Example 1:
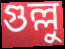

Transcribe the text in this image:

গুল্লু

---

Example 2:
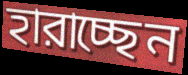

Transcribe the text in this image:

হারাচ্ছেন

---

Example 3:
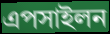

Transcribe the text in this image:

এপসাইলন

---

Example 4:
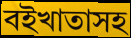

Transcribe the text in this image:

বইখাতাসহ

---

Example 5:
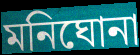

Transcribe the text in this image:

মনিঘোনা